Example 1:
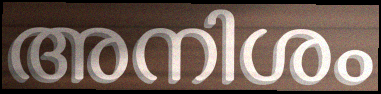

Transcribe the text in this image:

അനിശം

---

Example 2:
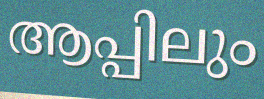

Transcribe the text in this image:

ആപ്പിലും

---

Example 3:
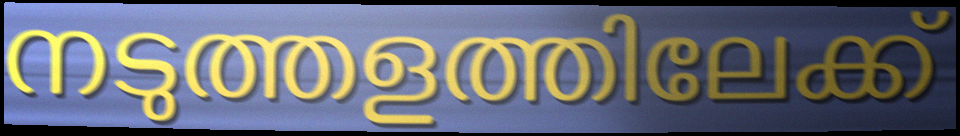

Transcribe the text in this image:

നടുത്തളത്തിലേക്ക്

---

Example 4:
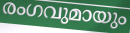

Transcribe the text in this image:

രംഗവുമായും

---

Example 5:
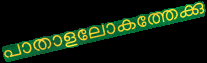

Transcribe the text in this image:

പാതാളലോകത്തേക്കു